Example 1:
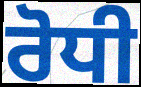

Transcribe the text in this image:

ਰੋਧੀ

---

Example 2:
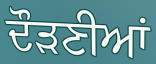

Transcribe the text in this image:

ਦੌੜਣੀਆਂ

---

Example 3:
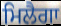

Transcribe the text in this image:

ਮਿਲੈਗਾ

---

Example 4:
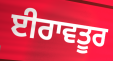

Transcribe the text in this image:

ਈਰਾਵਤੂਰ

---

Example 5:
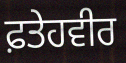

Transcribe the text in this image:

ਫ਼ਤੇਹਵੀਰ